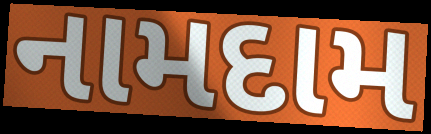
નામદામ